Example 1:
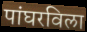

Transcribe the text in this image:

पांघरविला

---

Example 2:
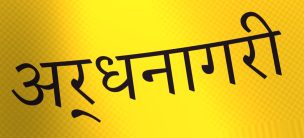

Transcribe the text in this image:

अर्धनागरी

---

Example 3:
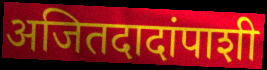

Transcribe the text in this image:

अजितदादांपाशी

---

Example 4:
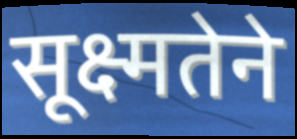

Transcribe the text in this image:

सूक्ष्मतेने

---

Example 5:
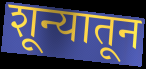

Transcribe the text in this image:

शून्यातून